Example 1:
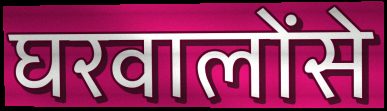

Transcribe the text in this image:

घरवालोंसे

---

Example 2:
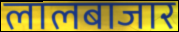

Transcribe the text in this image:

लालबाजार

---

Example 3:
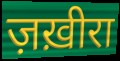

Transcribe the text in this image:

ज़ख़ीरा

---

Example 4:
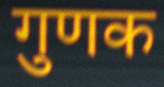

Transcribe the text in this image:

गुणक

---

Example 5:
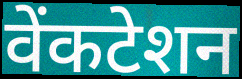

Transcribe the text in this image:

वेंकटेशन